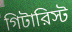
গিটারিস্ট